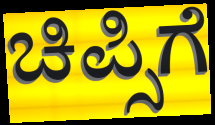
ಚಿಪ್ಸಿಗೆ